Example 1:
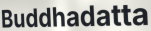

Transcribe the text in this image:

Buddhadatta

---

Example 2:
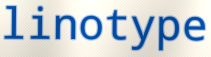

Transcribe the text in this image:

linotype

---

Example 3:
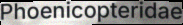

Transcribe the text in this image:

Phoenicopteridae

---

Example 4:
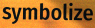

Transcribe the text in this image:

symbolize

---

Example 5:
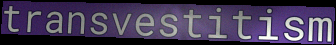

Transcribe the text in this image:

transvestitism